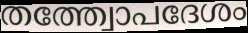
തത്ത്വോപദേശം